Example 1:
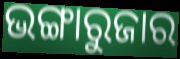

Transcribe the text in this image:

ଭଙ୍ଗାରୁଜାର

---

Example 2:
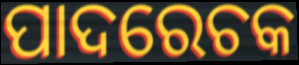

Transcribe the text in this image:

ପାଦରେଚକ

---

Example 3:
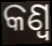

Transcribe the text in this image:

କଣ୍ୱ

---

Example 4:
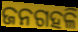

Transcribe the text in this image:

ଜନଗହଳି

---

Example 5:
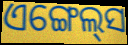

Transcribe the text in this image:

ଏଙ୍ଗେଲ୍‌ସ